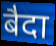
बैदा